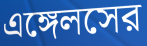
এঙ্গেলসের